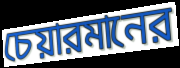
চেয়ারমানের